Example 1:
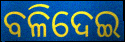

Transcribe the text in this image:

ବଳିଦେଇ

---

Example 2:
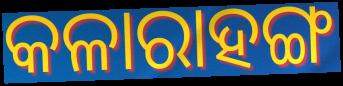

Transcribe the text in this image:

କଳାରାହଙ୍ଗ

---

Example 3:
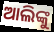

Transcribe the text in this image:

ଆଲିଙ୍କୁ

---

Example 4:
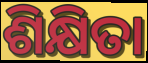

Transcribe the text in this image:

ଶିକ୍ଷିତା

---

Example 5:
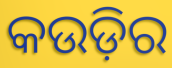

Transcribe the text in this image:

କଉଡ଼ିର